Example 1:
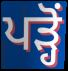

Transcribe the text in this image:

ਪੜ੍ਹੋਂ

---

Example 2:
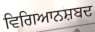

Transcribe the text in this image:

ਵਿਗਿਆਨਸ਼ਬਦ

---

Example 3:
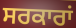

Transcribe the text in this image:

ਸਰਕਾਰਾਂ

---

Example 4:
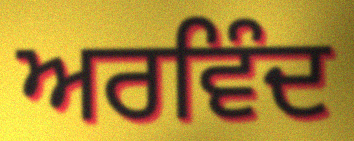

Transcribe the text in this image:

ਅਰਵਿੰਦ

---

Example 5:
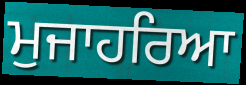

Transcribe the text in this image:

ਮੁਜਾਹਰਿਆ